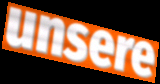
unsere